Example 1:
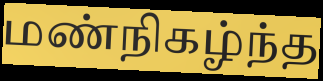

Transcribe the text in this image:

மண்நிகழ்ந்த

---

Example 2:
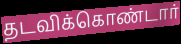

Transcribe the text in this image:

தடவிக்கொண்டார்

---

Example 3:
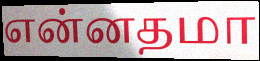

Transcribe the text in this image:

என்னதமா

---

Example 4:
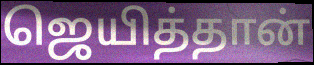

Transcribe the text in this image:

ஜெயித்தான்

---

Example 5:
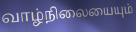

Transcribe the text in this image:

வாழ்நிலையையும்